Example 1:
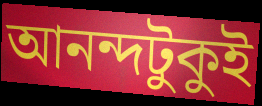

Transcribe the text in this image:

আনন্দটুকুই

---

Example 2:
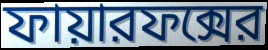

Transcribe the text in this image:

ফায়ারফক্সের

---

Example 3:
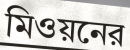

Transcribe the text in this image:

মিওয়নের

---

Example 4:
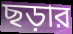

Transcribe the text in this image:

ছড়ার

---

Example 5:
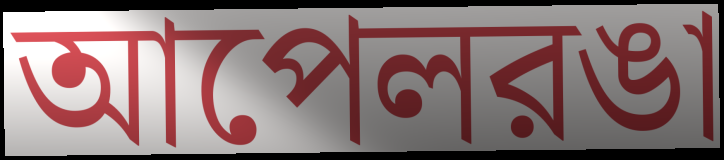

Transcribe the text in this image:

আপেলরঙা